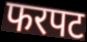
फरपट